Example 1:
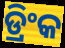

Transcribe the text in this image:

ଡ୍ରିଂକ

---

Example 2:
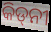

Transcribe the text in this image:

କିଡ୍‌ନୀ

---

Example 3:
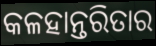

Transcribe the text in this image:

କଳହାନ୍ତରିତାର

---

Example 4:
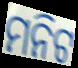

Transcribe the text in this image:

ମନିଟ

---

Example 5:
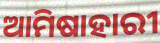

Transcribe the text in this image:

ଆମିଷାହାରୀ